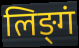
लिङ्गं